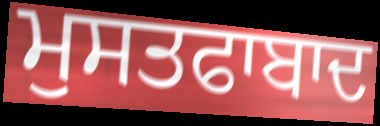
ਮੁਸਤਫਾਬਾਦ